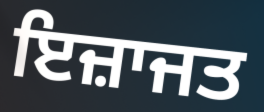
ਇਜ਼ਾਜਤ